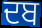
ਦਬ